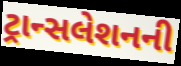
ટ્રાન્સલેશનની